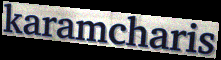
karamcharis